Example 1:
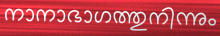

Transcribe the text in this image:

നാനാഭാഗത്തുനിന്നും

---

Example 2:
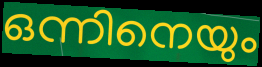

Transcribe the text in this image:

ഒന്നിനെയും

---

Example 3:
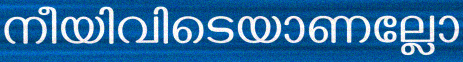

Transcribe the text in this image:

നീയിവിടെയാണല്ലോ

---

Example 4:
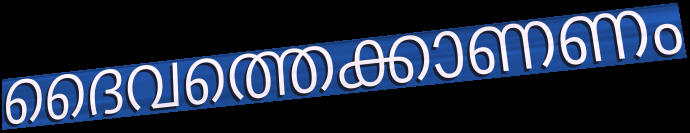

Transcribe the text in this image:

ദൈവത്തെക്കാണണം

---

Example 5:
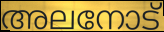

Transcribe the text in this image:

അലനോട്